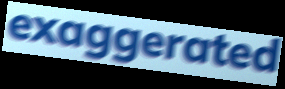
exaggerated